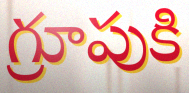
గ్రూపుకి